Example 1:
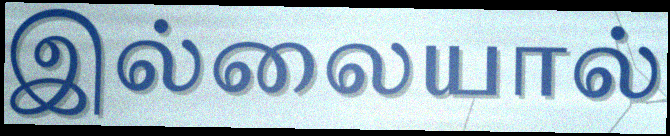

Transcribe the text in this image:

இல்லையால்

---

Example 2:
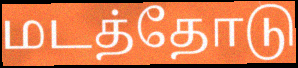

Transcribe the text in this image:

மடத்தோடு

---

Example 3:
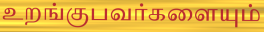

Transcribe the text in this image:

உறங்குபவர்களையும்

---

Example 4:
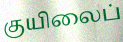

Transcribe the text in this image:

குயிலைப்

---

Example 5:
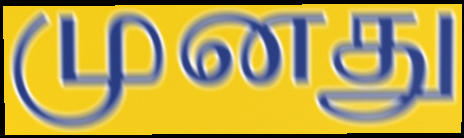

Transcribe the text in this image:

முனது